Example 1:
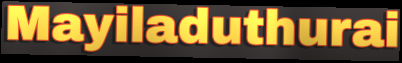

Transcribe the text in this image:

Mayiladuthurai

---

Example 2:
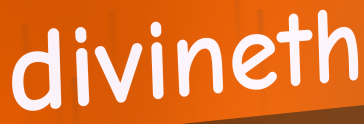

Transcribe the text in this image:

divineth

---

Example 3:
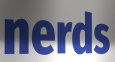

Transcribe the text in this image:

nerds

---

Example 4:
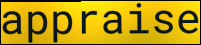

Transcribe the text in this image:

appraise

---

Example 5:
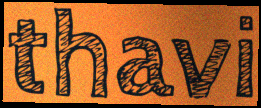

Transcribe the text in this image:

thavi